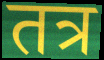
तत्र